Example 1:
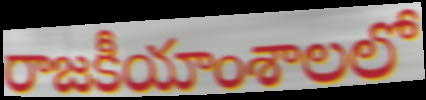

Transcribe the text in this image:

రాజకీయాంశాలలో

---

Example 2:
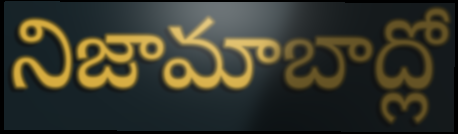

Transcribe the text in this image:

నిజామాబాద్లో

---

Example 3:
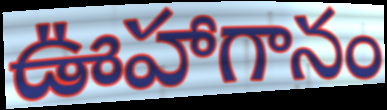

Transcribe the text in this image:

ఊహాగానం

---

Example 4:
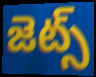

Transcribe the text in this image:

జెట్స్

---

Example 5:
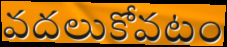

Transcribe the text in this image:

వదలుకోవటం